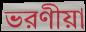
ভরণীয়া